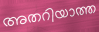
അതറിയാത്ത